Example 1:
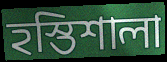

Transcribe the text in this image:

হস্তিশালা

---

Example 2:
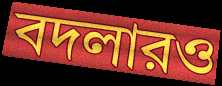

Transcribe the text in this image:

বদলারও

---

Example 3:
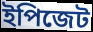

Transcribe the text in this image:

ইপিজেট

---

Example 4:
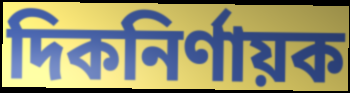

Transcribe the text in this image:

দিকনির্ণায়ক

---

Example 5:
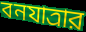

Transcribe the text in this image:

বনযাত্রার